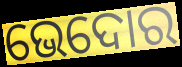
ଭେଦୋର